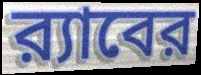
র‍্যাবের